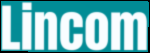
Lincom